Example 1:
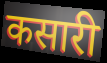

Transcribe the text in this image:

कसारी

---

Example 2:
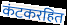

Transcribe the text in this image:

कंटकरहित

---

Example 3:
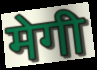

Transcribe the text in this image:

मेगी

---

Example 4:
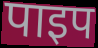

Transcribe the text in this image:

पाइप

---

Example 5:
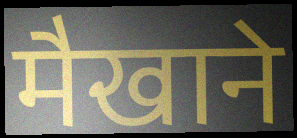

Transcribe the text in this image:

मैखाने